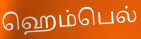
ஹெம்பெல்